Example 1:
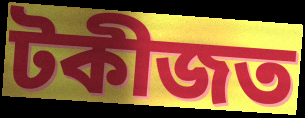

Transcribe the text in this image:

টকীজত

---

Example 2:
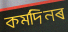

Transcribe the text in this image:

কৰ্মদিনৰ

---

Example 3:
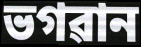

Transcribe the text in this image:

ভগৱান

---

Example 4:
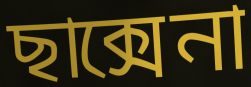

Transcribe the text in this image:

ছাক্সেনা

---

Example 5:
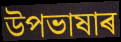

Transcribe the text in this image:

উপভাষাৰ